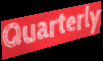
Quarterly